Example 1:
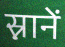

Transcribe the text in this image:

स्नानें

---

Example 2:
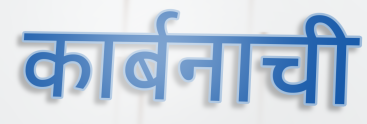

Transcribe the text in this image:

कार्बनाची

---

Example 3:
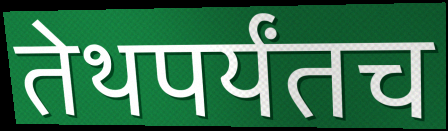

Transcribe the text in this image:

तेथपर्यंतच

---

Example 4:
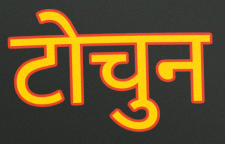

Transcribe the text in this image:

टोचुन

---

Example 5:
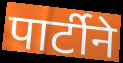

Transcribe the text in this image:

पार्टीने